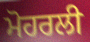
ਮੋਹਰਲੀ